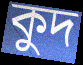
কুদ